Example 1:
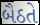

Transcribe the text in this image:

બૈઠતે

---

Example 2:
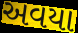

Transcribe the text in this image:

અવયા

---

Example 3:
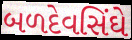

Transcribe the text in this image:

બળદેવસિંઘે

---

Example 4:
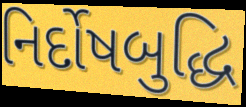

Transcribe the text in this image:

નિર્દોષબુદ્ધિ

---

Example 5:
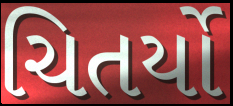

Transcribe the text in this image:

ચિતર્યો